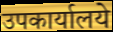
उपकार्यालये